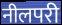
नीलपरी